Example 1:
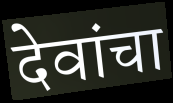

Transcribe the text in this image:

देवांचा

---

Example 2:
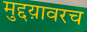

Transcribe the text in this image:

मुद्दय़ावरच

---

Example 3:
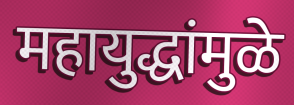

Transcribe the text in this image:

महायुद्धांमुळे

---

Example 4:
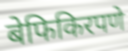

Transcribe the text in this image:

बेफिकिरपणे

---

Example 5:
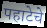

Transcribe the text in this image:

पहाटेचे